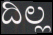
ದಿಲ್ಲ